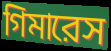
গিমারেস